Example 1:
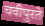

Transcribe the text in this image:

चवीपुरते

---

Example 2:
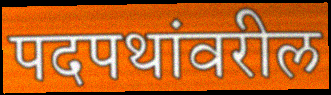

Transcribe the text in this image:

पदपथांवरील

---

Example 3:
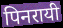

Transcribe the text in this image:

पिनरायी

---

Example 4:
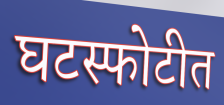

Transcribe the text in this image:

घटस्फोटीत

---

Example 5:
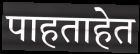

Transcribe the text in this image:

पाहताहेत